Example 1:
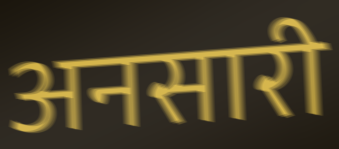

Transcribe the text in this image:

अनसारी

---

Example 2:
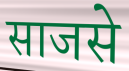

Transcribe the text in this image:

साजसे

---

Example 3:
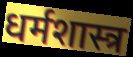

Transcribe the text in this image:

धर्मशास्त्र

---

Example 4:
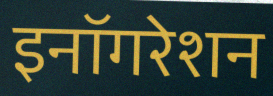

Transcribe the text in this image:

इनॉगरेशन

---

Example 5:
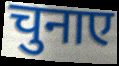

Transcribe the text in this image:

चुनाए